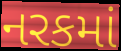
નરકમાં